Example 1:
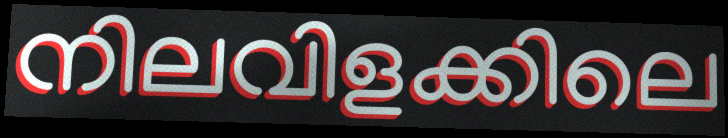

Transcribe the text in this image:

നിലവിളക്കിലെ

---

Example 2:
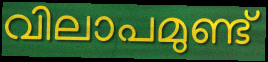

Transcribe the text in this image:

വിലാപമുണ്ട്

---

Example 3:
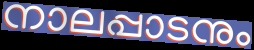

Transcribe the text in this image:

നാലപ്പാടനും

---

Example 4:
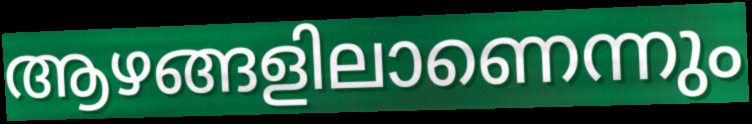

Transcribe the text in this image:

ആഴങ്ങളിലാണെന്നും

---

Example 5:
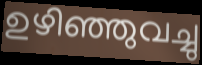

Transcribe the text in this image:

ഉഴിഞ്ഞുവച്ചു